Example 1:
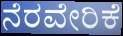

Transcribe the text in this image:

ನೆರವೇರಿಕೆ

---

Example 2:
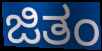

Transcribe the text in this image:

ಜಿತಂ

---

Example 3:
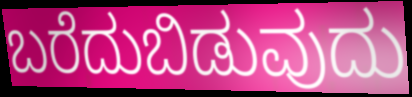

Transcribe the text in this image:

ಬರೆದುಬಿಡುವುದು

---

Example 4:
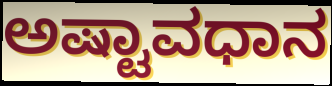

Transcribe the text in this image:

ಅಷ್ಟಾವಧಾನ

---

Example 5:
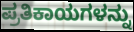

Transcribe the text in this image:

ಪ್ರತಿಕಾಯಗಳನ್ನು